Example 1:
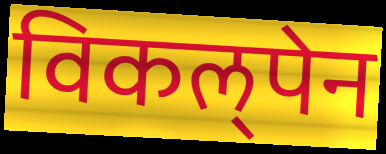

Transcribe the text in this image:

विकल्पेन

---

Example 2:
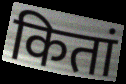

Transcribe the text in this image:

कितां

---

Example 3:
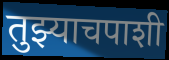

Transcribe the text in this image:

तुझ्याचपाशी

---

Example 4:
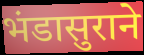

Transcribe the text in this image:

भंडासुराने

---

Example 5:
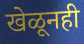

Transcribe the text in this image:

खेळूनही